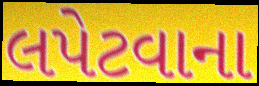
લપેટવાના